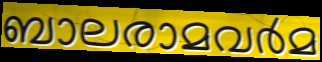
ബാലരാമവർമ